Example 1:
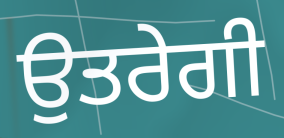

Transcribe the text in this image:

ਉਤਰੇਗੀ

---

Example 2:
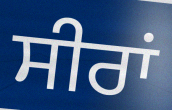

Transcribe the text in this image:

ਸੀਰਾਂ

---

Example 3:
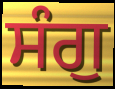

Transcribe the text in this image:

ਸੰਗੁ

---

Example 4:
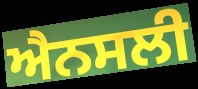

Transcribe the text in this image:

ਐਨਸਲੀ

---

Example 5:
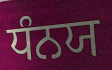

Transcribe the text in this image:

ਧੰਨਯ